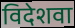
विदेशवा